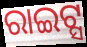
ରାଇଟ୍ସ